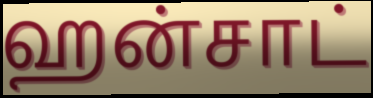
ஹன்சாட்